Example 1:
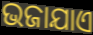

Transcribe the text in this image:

ଭଜାଯାଏ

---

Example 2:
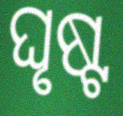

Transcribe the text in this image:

ଘୃଷ୍ଟ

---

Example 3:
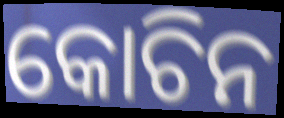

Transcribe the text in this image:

କୋଚିନ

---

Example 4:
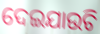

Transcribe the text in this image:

ଦେଇଯାଉଚି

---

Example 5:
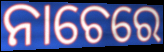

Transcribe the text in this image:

ନାଚେରେ